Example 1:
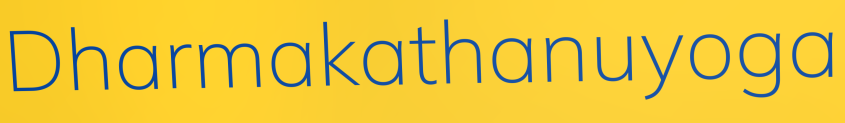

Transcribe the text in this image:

Dharmakathanuyoga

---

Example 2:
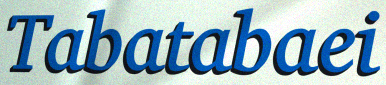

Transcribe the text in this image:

Tabatabaei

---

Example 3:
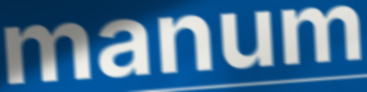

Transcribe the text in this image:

manum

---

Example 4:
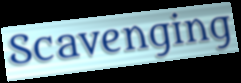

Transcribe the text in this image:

Scavenging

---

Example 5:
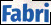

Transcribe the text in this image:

Fabri